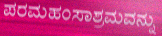
ಪರಮಹಂಸಾಶ್ರಮವನ್ನು